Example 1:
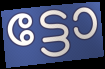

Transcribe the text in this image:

ട്ടോ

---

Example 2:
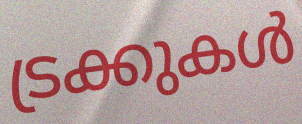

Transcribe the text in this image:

ട്രക്കുകൾ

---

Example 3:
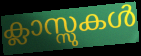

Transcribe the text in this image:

ക്ലാസ്സുകൾ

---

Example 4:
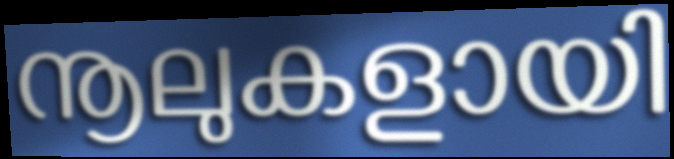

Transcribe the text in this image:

നൂലുകളായി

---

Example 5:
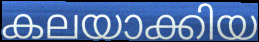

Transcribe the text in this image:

കലയാക്കിയ